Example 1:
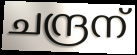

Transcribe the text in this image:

ചന്ദ്രന്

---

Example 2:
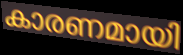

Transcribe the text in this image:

കാരണമായി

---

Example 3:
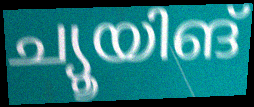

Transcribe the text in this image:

ച്യൂയിങ്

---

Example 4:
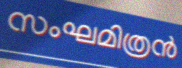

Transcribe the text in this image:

സംഘമിത്രൻ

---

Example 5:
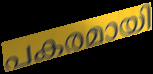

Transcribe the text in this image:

പകരമായി